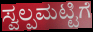
ಸ್ವಲ್ಪಮಟ್ಟಿಗೆ